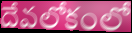
దేవలోకంలో